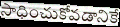
సాధించుకోవడానికే